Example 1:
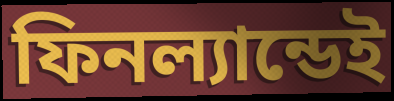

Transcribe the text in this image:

ফিনল্যান্ডেই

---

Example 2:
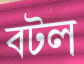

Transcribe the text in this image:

বটল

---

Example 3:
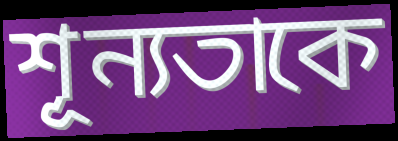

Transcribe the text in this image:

শূন্যতাকে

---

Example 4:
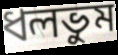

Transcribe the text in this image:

ধলভুম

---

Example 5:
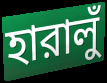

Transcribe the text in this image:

হারালুঁ